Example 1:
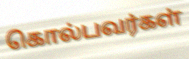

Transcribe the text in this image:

கொல்பவர்கள்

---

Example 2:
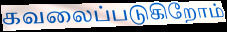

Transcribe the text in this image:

கவலைப்படுகிறோம்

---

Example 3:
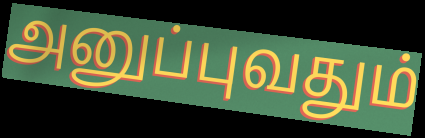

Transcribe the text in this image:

அனுப்புவதும்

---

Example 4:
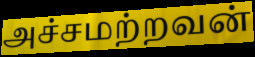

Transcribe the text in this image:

அச்சமற்றவன்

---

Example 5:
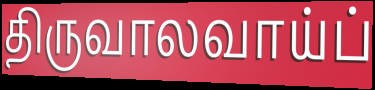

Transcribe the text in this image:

திருவாலவாய்ப்